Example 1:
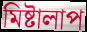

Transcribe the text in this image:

মিষ্টালাপ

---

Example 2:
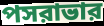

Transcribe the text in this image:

পসরাভার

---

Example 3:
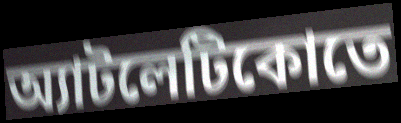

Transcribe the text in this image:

অ্যাটলেটিকোতে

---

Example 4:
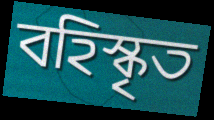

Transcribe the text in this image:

বহিস্কৃত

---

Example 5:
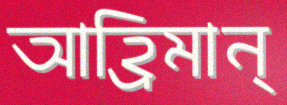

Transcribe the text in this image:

আহ্রিমান্